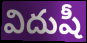
విదుషీ